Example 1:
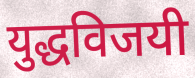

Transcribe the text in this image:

युद्धविजयी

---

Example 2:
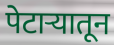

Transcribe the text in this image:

पेटाऱ्यातून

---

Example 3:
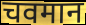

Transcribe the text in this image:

चवमान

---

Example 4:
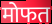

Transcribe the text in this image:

मोफत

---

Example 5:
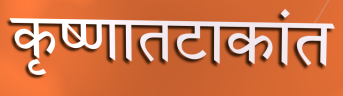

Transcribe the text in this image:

कृष्णातटाकांत